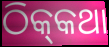
ଠିକ୍‌କଥା